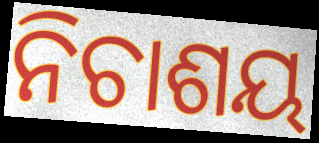
ନିଚାଶୟ